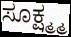
ಸೂಕ್ಷ್ಮ್ಮ